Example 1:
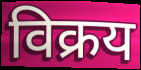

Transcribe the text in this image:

विक्रय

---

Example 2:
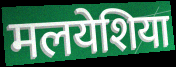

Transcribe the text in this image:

मलयेशिया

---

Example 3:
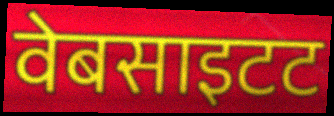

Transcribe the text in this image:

वेबसाइटट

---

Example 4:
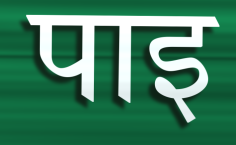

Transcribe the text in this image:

पाइ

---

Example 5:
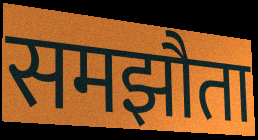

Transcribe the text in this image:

समझौता